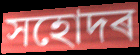
সহোদৰ